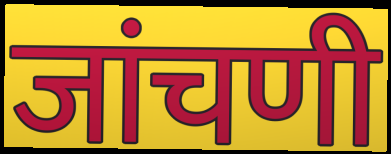
जांचणी